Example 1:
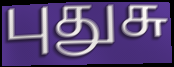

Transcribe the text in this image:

புதுசு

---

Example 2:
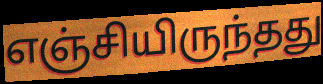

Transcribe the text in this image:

எஞ்சியிருந்தது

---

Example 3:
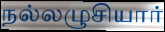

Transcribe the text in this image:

நல்லழுசியார்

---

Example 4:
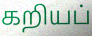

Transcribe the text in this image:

கறியப்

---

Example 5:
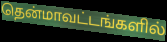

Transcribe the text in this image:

தென்மாவட்டங்களில்